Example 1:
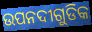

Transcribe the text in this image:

ଉପନଦୀଗୁଡିକ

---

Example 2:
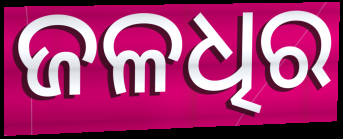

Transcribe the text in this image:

ଜଳଧିର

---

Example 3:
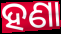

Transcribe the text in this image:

ହଣା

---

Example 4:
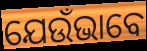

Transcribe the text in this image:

ଯେଉଁଭାବେ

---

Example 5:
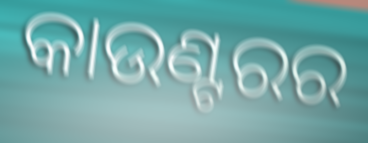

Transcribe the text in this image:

କାଉଣ୍ଟରର